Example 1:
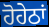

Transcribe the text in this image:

ਹੋਹੇਠਾਂ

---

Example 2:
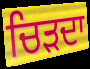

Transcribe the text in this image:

ਚਿੜਦਾ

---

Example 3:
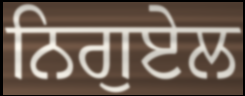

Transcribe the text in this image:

ਨਿਗੁਏਲ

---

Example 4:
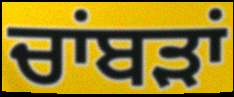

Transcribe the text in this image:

ਚਾਂਬੜਾਂ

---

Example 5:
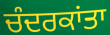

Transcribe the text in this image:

ਚੰਦਰਕਾਂਤਾ